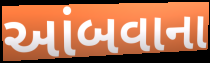
આંબવાના